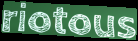
riotous